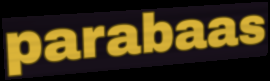
parabaas